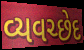
વ્યવચ્છેદ